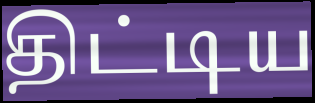
திட்டிய